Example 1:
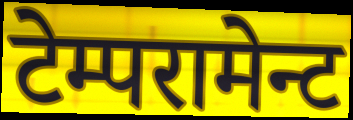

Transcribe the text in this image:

टेम्परामेन्ट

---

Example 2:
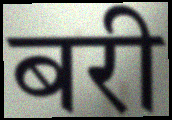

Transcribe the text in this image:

बरी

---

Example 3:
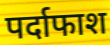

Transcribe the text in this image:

पर्दाफाश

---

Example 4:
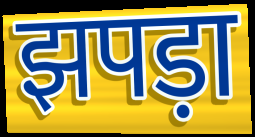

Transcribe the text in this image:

झपड़ा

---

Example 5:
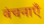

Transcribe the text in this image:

वंचनाएँ